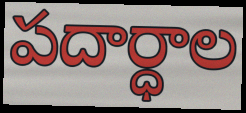
పదార్ధాల